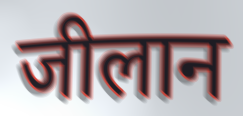
जीलान